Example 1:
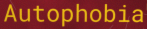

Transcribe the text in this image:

Autophobia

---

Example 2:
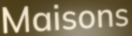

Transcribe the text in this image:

Maisons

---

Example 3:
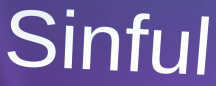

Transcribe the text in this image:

Sinful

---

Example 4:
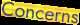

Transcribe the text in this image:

Concerns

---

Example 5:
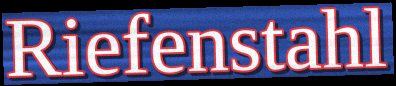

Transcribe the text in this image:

Riefenstahl